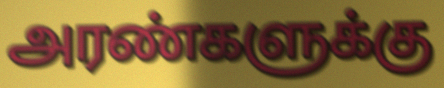
அரண்களுக்கு